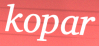
kopar